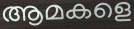
ആമകളെ